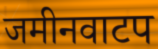
जमीनवाटप